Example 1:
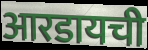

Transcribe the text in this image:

आरडायची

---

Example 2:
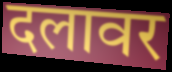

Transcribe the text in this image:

दलावर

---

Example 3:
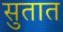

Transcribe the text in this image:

सुतात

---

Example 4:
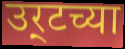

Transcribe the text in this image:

उर्टच्या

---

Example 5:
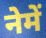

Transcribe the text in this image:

नेमें